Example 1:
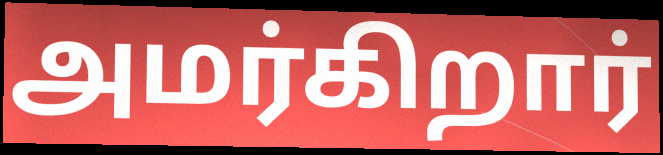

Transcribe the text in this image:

அமர்கிறார்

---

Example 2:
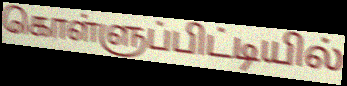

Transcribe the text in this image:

கொள்ளுப்பிட்டியில்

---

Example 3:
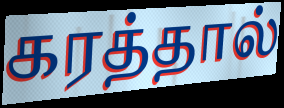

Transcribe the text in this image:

கரத்தால்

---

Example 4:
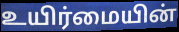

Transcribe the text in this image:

உயிர்மையின்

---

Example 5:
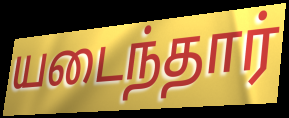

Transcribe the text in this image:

யடைந்தார்